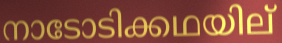
നാടോടിക്കഥയില്